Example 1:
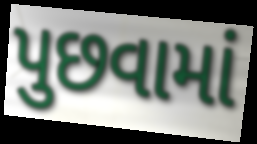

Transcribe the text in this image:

પુછવામાં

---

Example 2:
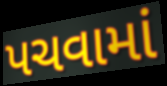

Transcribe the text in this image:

પચવામાં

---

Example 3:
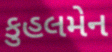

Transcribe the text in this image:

કુહલમેન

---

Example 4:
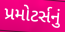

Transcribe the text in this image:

પ્રમોટર્સનું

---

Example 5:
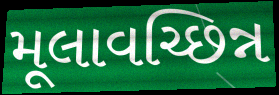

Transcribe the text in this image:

મૂલાવચ્છિન્ન